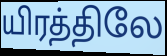
யிரத்திலே